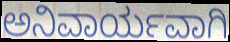
ಅನಿವಾರ್ಯವಾಗಿ